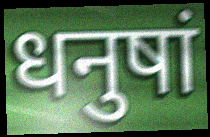
धनुषां